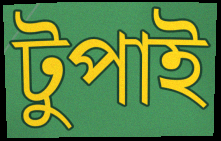
টুপাই